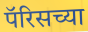
पॅरिसच्या